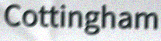
Cottingham